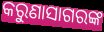
କରୁଣାସାଗରଙ୍କ